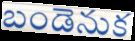
బండెనుక